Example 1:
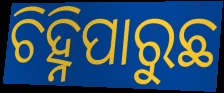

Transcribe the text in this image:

ଚିହ୍ନିପାରୁଛ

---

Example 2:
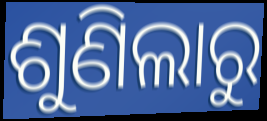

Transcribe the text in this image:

ଶୁଣିଲାରୁ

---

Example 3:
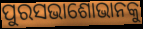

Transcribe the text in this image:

ପୁରସଭାଶୋଭାନକୁ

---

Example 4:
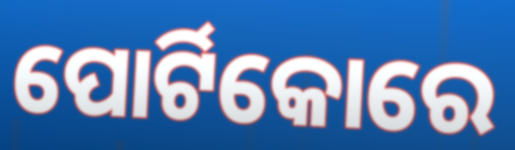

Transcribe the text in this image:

ପୋର୍ଟିକୋରେ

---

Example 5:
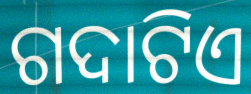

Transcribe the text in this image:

ଗଦାଟିଏ